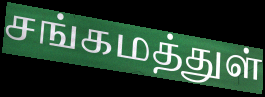
சங்கமத்துள்